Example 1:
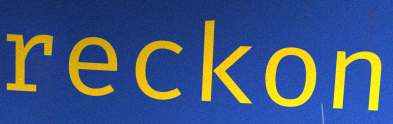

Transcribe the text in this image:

reckon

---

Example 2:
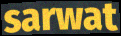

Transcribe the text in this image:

sarwat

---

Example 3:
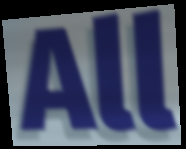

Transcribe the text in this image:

All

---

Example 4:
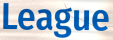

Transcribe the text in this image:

League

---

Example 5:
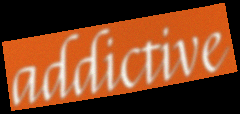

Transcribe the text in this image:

addictive